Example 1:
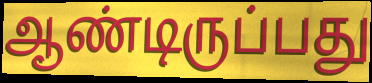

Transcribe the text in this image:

ஆண்டிருப்பது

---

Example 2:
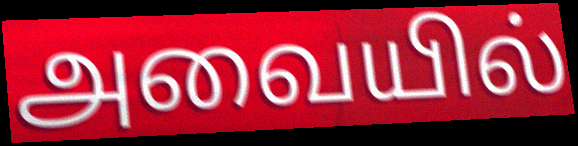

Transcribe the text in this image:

அவையில்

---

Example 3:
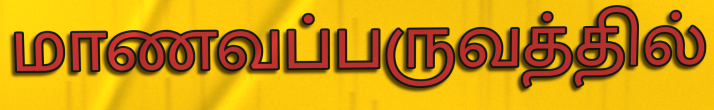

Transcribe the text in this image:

மாணவப்பருவத்தில்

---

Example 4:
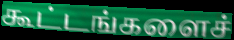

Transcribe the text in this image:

கூட்டங்களைச்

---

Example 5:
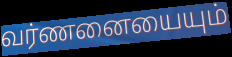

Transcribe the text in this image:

வர்ணனையையும்